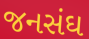
જનસંઘ